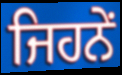
ਜਿਹਨੇਂ